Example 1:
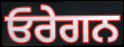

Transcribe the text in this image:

ਓਰੇਗਨ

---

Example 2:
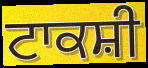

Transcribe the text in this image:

ਟਾਕਸ਼ੀ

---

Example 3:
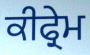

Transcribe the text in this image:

ਕੀਫ੍ਰੇਮ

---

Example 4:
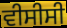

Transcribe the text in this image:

ਵੀਸੀਸੀ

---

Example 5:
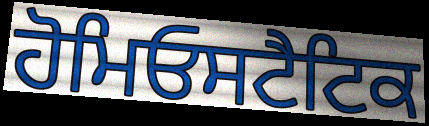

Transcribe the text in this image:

ਹੋਮਿਓਸਟੈਟਿਕ